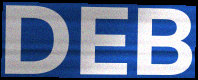
DEB